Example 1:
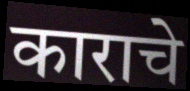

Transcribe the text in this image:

काराचे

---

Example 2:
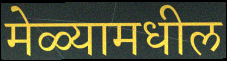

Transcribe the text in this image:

मेळ्यामधील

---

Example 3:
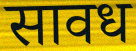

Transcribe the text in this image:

सावध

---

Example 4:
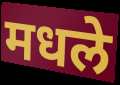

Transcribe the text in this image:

मधले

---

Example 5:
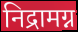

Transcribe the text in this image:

निद्रामग्न